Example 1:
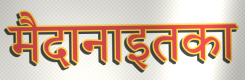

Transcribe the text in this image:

मैदानाइतका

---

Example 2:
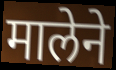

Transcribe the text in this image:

मालेने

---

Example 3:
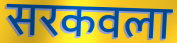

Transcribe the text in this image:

सरकवला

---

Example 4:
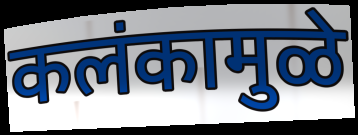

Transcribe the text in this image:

कलंकामुळे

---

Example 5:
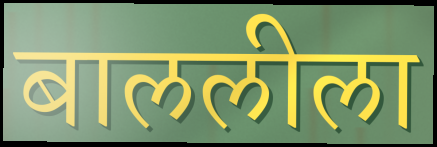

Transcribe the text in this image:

बाललीला